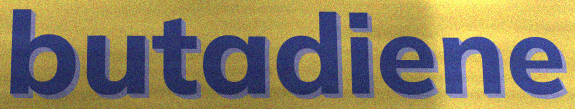
butadiene